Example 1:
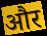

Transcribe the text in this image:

और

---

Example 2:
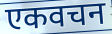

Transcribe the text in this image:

एकवचन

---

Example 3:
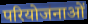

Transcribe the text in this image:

परियोजनाओं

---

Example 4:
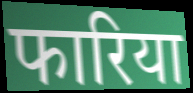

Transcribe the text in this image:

फारिया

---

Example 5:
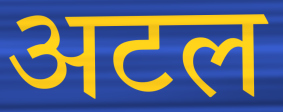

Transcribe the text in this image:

अटल